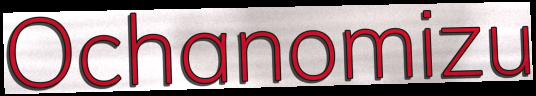
Ochanomizu